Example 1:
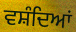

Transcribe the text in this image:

ਵਸ਼ੰਦਿਆਂ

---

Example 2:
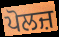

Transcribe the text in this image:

ਪੋਲਜ਼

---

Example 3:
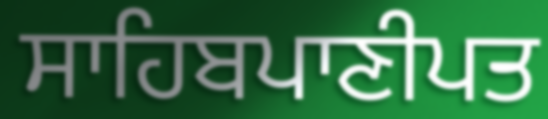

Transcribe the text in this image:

ਸਾਹਿਬਪਾਣੀਪਤ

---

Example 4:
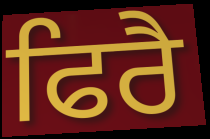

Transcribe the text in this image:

ਫਿਰੈ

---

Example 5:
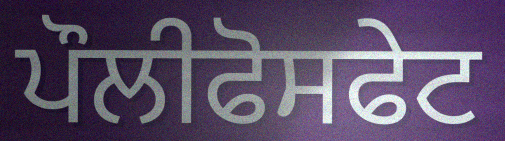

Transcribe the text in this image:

ਪੌਲੀਫੋਸਫੇਟ